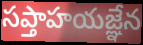
సప్తాహయజ్ఞేన